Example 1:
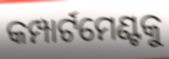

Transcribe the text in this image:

କମ୍ପାର୍ଟମେଣ୍ଟକୁ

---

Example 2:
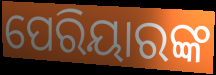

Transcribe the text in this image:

ପେରିୟାରଙ୍କ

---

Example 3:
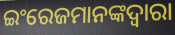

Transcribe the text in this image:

ଇଂରେଜମାନଙ୍କଦ୍ୱାରା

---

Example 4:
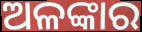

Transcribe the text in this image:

ଅଳଙ୍କାର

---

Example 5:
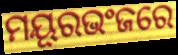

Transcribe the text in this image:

ମୟୂରଭଂଜରେ